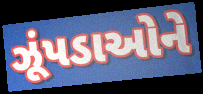
ઝૂંપડાઓને